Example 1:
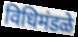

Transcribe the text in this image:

विधिमंडळे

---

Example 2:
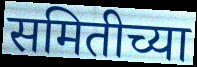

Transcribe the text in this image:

समितीच्या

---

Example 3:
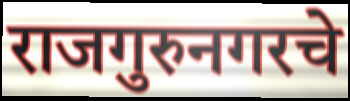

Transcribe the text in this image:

राजगुरुनगरचे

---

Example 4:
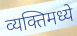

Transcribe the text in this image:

व्यक्तिमध्ये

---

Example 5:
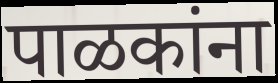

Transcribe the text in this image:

पाळकांना